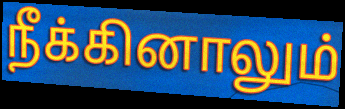
நீக்கினாலும்